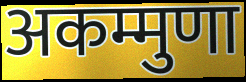
अकम्मुणा